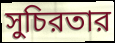
সুচিরতার